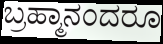
ಬ್ರಹ್ಮಾನಂದರೂ